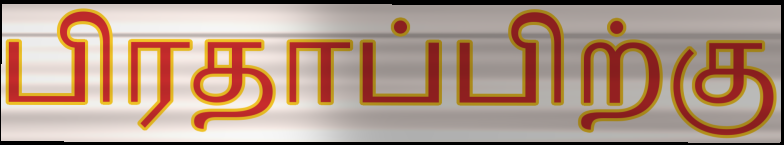
பிரதாப்பிற்கு